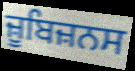
ਜ਼ੂਬਿਜ਼ਨਸ